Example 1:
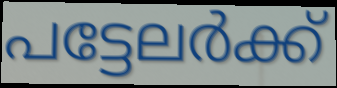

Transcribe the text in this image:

പട്ടേലർക്ക്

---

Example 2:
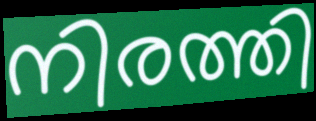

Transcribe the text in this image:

നിരത്തി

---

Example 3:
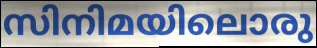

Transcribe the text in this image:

സിനിമയിലൊരു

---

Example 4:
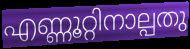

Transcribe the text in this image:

എണ്ണൂറ്റിനാല്പതു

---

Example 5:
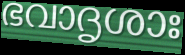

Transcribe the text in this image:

ഭവാദൃശാഃ